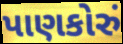
પાણકોરું